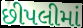
છીપલીમાં